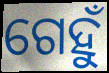
ଗେହୁଁ